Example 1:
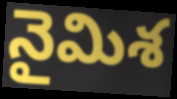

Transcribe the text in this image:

నైమిశ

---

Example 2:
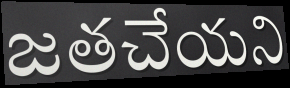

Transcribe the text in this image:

జతచేయని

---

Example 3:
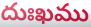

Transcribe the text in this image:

దుఃఖము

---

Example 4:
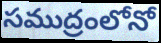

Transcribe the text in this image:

సముద్రంలోనో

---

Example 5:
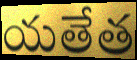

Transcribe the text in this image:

యతేత